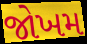
જોખમ